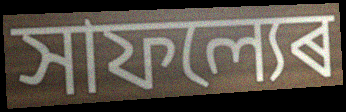
সাফল্যেৰ